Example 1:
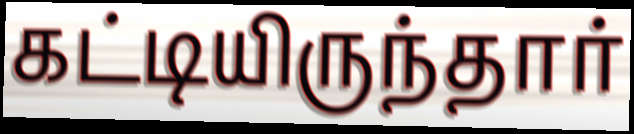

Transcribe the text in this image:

கட்டியிருந்தார்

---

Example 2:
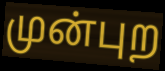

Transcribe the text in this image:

முன்புற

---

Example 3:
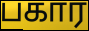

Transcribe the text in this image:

பகார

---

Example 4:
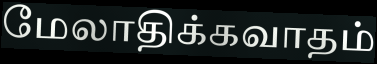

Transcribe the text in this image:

மேலாதிக்கவாதம்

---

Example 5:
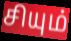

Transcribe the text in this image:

சியும்